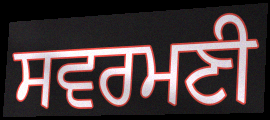
ਸਵਰਮਣੀ